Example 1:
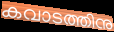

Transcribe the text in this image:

കവാടത്തിനു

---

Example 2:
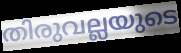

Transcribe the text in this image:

തിരുവല്ലയുടെ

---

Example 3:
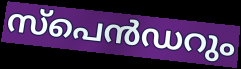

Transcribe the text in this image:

സ്പെൻഡറും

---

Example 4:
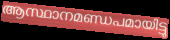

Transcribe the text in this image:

ആസ്ഥാനമണ്ഡപമായിട്ടു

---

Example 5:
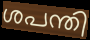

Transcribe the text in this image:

ശപന്തി